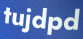
tujdpd